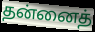
தன்னைத்